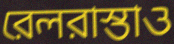
রেলরাস্তাও